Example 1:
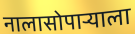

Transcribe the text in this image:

नालासोपाऱ्याला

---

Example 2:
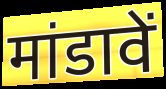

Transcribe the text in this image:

मांडावें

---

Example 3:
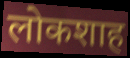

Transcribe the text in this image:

लोकशाह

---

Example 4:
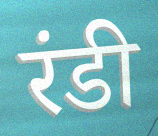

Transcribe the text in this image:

रंडी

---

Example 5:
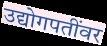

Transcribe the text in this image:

उद्योगपतींवर